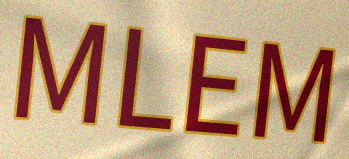
MLEM